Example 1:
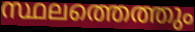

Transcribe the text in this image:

സ്ഥലത്തെത്തും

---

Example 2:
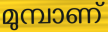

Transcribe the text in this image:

മുമ്പാണ്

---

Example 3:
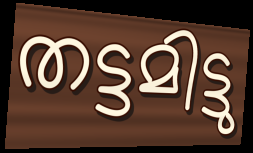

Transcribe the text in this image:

തട്ടമിട്ടു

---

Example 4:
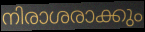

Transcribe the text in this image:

നിരാശരാക്കും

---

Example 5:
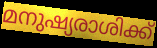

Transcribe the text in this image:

മനുഷ്യരാശിക്ക്